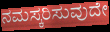
ನಮಸ್ಕರಿಸುವುದೇ